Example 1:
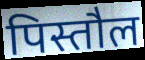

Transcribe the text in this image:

पिस्तौल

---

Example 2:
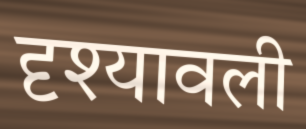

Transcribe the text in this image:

दृश्यावली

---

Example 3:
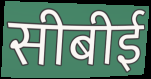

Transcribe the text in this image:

सीबीई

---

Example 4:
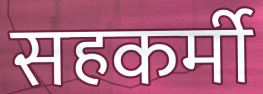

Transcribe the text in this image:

सहकर्मी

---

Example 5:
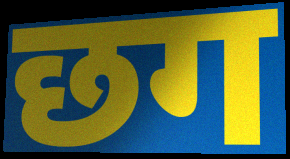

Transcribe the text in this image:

छग